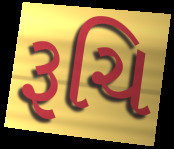
રૂચિ